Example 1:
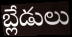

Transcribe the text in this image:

బ్లేడులు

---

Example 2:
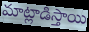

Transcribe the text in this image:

మాట్లాడిస్తాయి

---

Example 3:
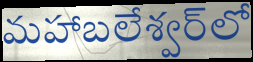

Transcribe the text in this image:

మహాబలేశ్వర్‌లో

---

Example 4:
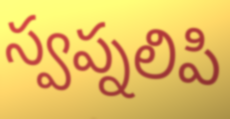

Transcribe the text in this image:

స్వప్నలిపి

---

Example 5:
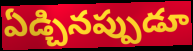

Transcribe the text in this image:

ఏడ్చినప్పుడూ